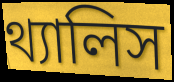
থ্যালিস